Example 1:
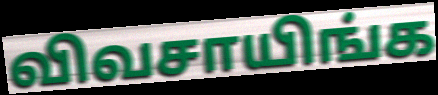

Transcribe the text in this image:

விவசாயிங்க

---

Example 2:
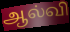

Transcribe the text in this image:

ஆல்வி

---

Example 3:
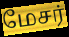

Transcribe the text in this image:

மேசர்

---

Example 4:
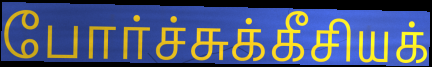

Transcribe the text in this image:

போர்ச்சுக்கீசியக்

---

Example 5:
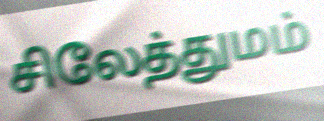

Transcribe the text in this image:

சிலேத்துமம்